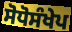
ਸੋਧੋਸੰਖੇਪ